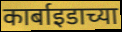
कार्बाइडाच्या